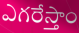
ఎగరేస్తాం